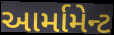
આર્મામેન્ટ